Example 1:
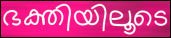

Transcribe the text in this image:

ഭക്തിയിലൂടെ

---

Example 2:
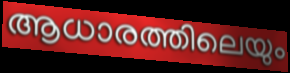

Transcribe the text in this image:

ആധാരത്തിലെയും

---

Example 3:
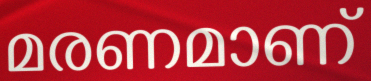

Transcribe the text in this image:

മരണമാണ്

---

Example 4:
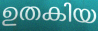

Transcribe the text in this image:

ഉതകിയ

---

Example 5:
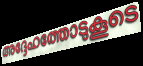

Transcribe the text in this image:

അദ്ദേഹത്തോടുകൂടെ